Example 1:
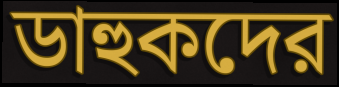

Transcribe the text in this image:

ডাহুকদের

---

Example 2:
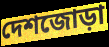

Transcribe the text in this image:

দেশজোড়া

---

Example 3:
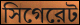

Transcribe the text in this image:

সিগেরেট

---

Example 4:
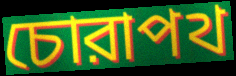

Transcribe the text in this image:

চোরাপথ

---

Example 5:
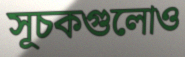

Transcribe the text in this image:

সূচকগুলোও